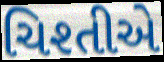
ચિશ્તીએ